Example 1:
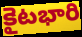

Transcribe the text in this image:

కైటభారి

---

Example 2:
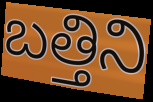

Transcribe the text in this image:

బత్తిని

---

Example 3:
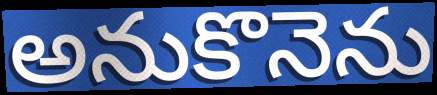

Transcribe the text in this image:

అనుకొనెను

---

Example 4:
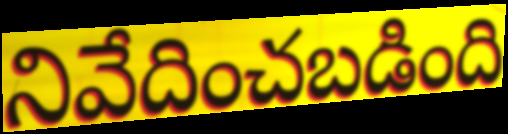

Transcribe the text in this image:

నివేదించబడింది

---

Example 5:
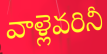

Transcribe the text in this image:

వాళ్లెవరినీ